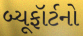
બ્યૂફૉર્ટનો